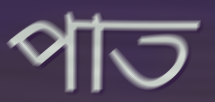
পাত